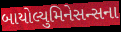
બાયોલ્યુમિનેસન્સના